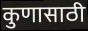
कुणासाठी